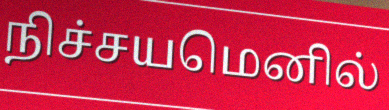
நிச்சயமெனில்